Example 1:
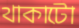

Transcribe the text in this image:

থাকাটো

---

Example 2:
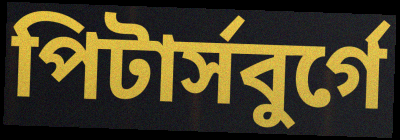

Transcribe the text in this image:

পিটাৰ্সবুৰ্গে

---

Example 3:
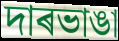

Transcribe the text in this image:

দাৰভাঙা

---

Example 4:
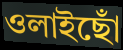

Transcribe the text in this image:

ওলাইছোঁ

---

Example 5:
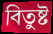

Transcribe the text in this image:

বিতুষ্ট